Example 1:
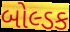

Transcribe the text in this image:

બોલ્ડક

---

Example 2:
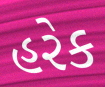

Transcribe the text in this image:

હરેક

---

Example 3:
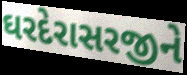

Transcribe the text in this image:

ઘરદેરાસરજીને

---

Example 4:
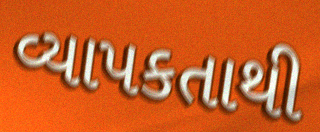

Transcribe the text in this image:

વ્યાપકતાથી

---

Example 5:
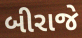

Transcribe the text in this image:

બીરાજે